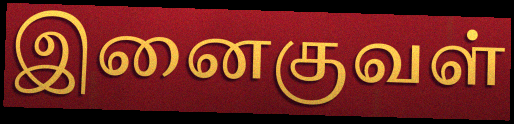
இனைகுவள்